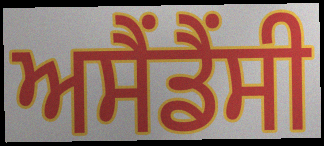
ਅਸੈਂਡੈਂਸੀ